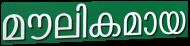
മൗലികമായ